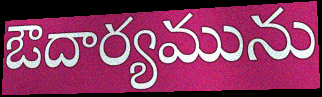
ఔదార్యమును